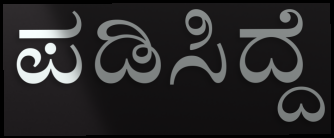
ಪಡಿಸಿದ್ದೆ